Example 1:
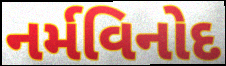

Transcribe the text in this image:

નર્મવિનોદ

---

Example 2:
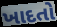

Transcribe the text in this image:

ખાદતો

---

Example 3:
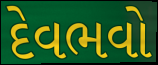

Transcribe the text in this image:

દેવભવો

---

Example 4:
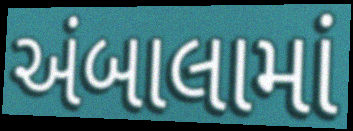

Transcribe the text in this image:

અંબાલામાં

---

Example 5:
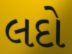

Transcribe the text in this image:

લદો